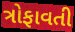
ત્રોફાવતી